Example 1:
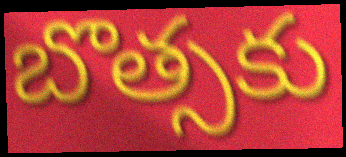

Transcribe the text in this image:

బొత్సకు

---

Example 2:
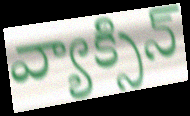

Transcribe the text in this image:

వ్యాక్సిన్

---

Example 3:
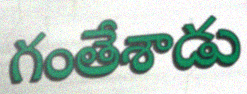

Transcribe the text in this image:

గంతేశాడు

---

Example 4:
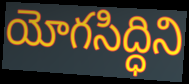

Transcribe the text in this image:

యోగసిద్ధిని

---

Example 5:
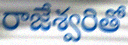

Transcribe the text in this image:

రాజేశ్వరితో